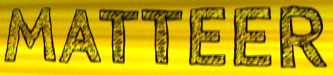
MATTEER